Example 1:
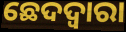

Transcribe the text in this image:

ଛେଦଦ୍ୱାରା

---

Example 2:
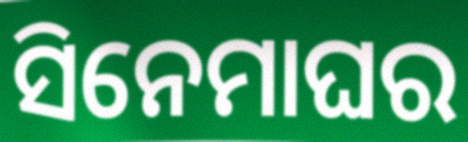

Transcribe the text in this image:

ସିନେମାଘର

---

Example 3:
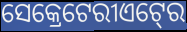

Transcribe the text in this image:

ସେକ୍ରେଟେରୀଏଟ୍‍ରେ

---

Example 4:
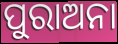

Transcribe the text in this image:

ପୁରାଅନା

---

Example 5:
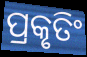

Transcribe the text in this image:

ପ୍ରକୃତିଂ